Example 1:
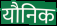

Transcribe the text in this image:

यौनिक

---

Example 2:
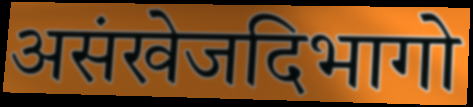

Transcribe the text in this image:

असंखेजदिभागो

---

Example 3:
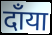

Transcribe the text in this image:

दाँया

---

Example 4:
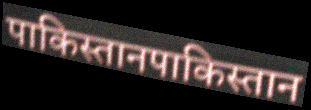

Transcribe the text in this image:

पाकिस्तानपाकिस्तान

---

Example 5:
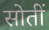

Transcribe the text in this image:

सोतीं